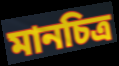
মানচিত্র